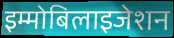
इम्मोबिलाइजेशन